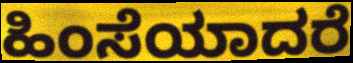
ಹಿಂಸೆಯಾದರೆ